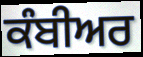
ਕੰਬੀਅਰ